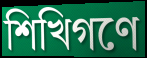
শিখিগণে